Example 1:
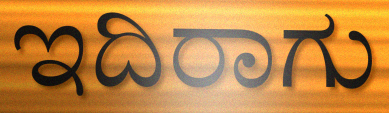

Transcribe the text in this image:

ಇದಿರಾಗು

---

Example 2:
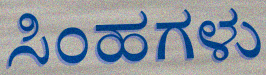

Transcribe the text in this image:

ಸಿಂಹಗಳು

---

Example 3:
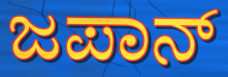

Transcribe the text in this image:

ಜಪಾನ್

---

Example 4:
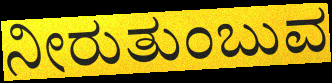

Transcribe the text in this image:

ನೀರುತುಂಬುವ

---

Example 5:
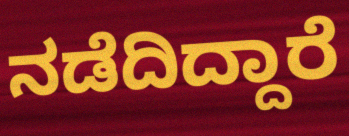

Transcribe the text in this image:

ನಡೆದಿದ್ದಾರೆ